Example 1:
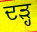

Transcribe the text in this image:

ਦੜ੍ਹ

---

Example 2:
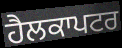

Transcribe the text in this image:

ਹੈਲਕਾਪਟਰ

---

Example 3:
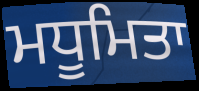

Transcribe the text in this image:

ਮਧੂਮਿਤਾ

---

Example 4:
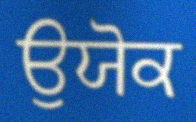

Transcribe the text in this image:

ਉਯੋਕ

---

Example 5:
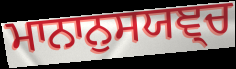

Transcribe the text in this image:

ਮਾਨਾਨੁਸਯਞ੍ਚ